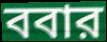
ববার